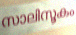
സാലിസൂകം